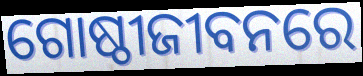
ଗୋଷ୍ଠୀଜୀବନରେ